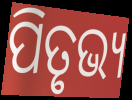
ପିତୃଭ୍ୟ